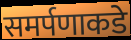
समर्पणाकडे